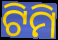
ଟିମି